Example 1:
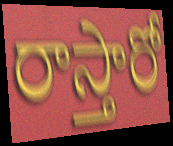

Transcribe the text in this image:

రాస్తారో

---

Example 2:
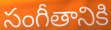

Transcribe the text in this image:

సంగీతానికి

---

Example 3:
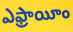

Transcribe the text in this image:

ఎఫ్రాయీం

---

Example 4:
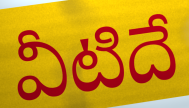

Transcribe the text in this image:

వీటిదే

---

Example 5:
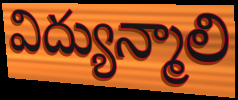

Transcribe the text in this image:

విద్యున్మాలి